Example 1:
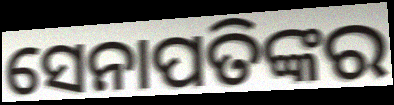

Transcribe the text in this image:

ସେନାପତିଙ୍କର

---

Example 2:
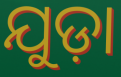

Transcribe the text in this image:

ଯୁଡ଼ା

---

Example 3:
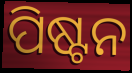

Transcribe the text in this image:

ପିଷ୍ଟନ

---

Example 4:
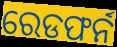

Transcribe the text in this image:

ରେଡଫର୍ନ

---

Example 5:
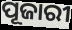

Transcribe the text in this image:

ପୂଜାରୀ